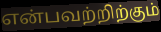
என்பவற்றிற்கும்